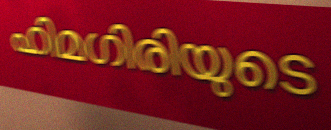
ഹിമഗിരിയുടെ